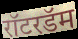
रॉटरडॅम